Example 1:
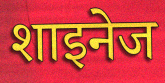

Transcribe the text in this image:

शाइनेज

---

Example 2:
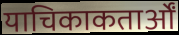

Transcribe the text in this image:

याचिकाकतार्ओं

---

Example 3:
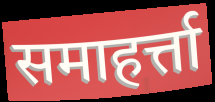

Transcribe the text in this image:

समाहर्त्ता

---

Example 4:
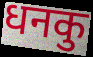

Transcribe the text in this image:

धनकु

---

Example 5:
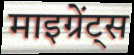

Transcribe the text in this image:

माइग्रेंट्स